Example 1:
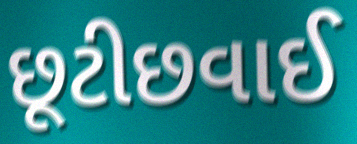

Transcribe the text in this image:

છૂટીછવાઈ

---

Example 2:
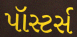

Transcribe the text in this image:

પૉસ્ટર્સ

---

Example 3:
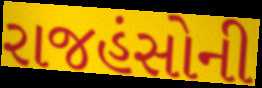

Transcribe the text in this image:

રાજહંસોની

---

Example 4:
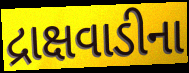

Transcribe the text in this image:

દ્રાક્ષવાડીના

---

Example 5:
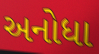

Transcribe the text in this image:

અનોધા